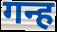
गन्ह